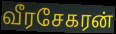
வீரசேகரன்